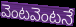
వెంటవెంటనే